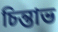
চিন্তাভ